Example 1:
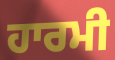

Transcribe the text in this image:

ਹਾਰਮੀ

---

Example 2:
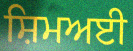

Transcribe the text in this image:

ਸ਼ਿਮਅਈ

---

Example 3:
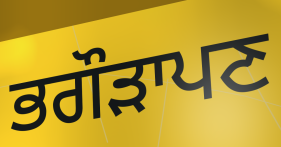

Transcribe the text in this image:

ਭਗੌੜਾਪਣ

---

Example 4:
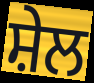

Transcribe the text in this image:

ਸ਼ੇਲ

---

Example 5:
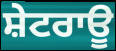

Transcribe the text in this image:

ਸ਼ੇਟਰਾਊ